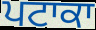
ਪਟਾਕਾ